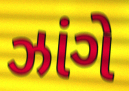
ઝાંગે